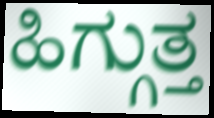
ಹಿಗ್ಗುತ್ತ